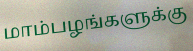
மாம்பழங்களுக்கு